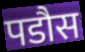
पडौस